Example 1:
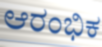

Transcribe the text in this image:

ಆರಂಭಿಕ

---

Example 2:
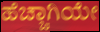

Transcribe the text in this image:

ಹೆಚ್ಚಾಗಿಯೇ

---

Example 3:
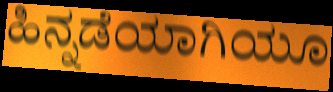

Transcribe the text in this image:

ಹಿನ್ನಡೆಯಾಗಿಯೂ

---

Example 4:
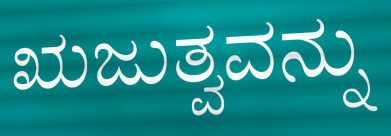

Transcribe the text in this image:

ಋಜುತ್ವವನ್ನು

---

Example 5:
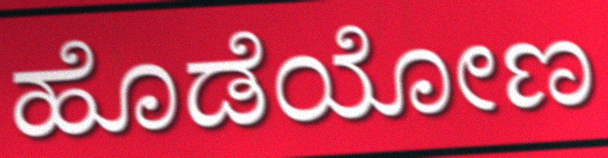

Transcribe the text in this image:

ಹೊಡೆಯೋಣ